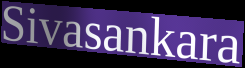
Sivasankara